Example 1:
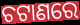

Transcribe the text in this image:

ଚଟାଣରେ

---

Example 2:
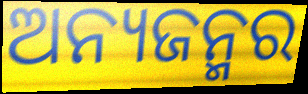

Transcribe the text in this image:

ଅନ୍ୟଜନ୍ମର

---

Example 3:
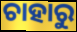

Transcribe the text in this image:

ଚାହାରୁ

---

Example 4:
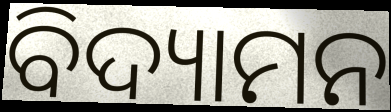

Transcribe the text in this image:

ବିଦ୍ୟାମନ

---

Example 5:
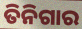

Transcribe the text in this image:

ତିନିଗାର